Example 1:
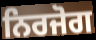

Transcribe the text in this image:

ਨਿਰਜੋਗ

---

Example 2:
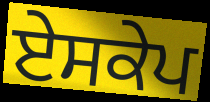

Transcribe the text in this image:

ਏਸਕੇਪ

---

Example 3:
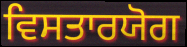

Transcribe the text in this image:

ਵਿਸਤਾਰਯੋਗ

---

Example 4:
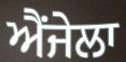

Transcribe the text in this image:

ਐਂਜੇਲਾ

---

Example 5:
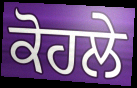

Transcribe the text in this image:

ਕੋਹਲੇ